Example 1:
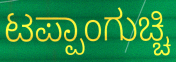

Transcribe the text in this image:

ಟಪ್ಪಾಂಗುಚ್ಚಿ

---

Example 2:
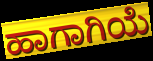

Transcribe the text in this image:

ಹಾಗಾಗಿಯೆ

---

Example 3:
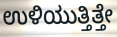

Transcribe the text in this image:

ಉಳಿಯುತ್ತಿತ್ತೇ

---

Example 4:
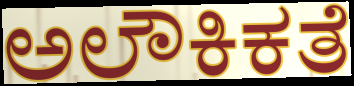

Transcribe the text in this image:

ಅಲೌಕಿಕತೆ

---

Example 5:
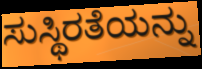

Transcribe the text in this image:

ಸುಸ್ಥಿರತೆಯನ್ನು